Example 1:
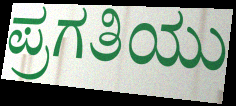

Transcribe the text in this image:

ಪ್ರಗತಿಯು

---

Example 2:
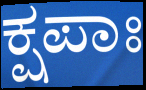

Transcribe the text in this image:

ಕ್ಷಪಾಃ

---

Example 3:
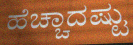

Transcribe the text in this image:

ಹೆಚ್ಚಾದಷ್ಟು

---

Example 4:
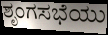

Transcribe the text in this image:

ಶೃಂಗಸಭೆಯು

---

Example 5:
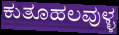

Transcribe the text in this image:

ಕುತೂಹಲವುಳ್ಳ